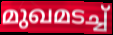
മുഖമടച്ച്